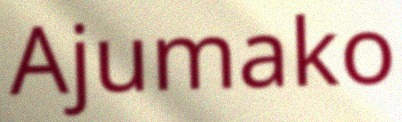
Ajumako